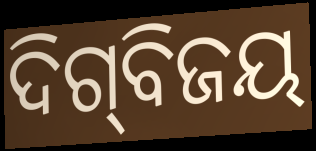
ଦିଗ୍‍ବିଜୟ